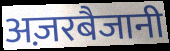
अज़रबैजानी